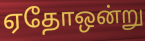
ஏதோஒன்று